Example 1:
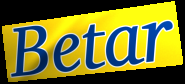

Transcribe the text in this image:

Betar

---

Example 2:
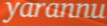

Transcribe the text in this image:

yarannu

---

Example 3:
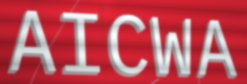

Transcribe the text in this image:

AICWA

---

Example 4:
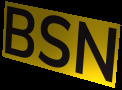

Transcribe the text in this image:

BSN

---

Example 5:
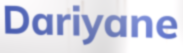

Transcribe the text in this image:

Dariyane